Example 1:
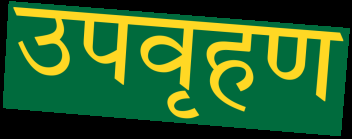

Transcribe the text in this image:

उपवृहण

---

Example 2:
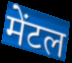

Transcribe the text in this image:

मेंटल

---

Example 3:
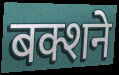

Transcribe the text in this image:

बक्शने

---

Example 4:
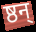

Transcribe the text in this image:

ष्ठन्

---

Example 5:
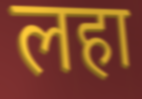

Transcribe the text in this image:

लहा